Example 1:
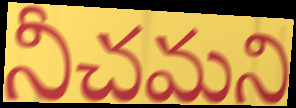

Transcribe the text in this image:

నీచమని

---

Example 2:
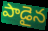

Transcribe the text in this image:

పాడైన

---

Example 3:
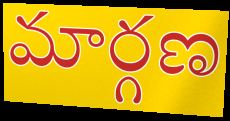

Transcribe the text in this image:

మార్గణ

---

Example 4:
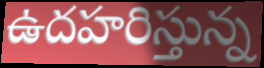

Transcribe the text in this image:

ఉదహరిస్తున్న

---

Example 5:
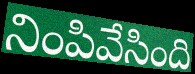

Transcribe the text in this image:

నింపివేసింది